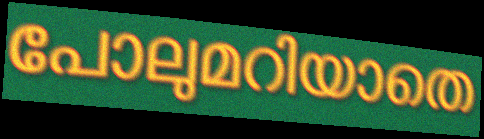
പോലുമറിയാതെ